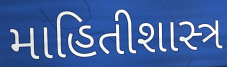
માહિતીશાસ્ત્ર